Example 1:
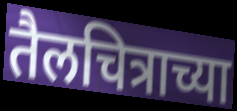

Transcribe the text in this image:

तैलचित्राच्या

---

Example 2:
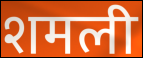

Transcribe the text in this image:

शमली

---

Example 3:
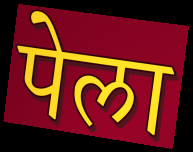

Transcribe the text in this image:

पेला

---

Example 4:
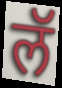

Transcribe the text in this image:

लॅ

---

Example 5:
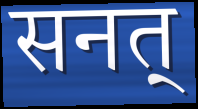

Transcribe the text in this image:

सनत्